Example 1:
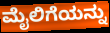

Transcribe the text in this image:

ಮೈಲಿಗೆಯನ್ನು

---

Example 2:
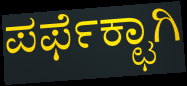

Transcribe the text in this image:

ಪರ್ಫೆಕ್ಟಾಗಿ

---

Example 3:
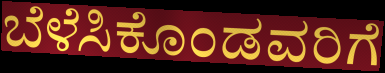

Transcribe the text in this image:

ಬೆಳೆಸಿಕೊಂಡವರಿಗೆ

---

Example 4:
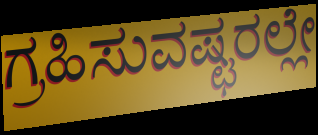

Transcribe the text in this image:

ಗ್ರಹಿಸುವಷ್ಟರಲ್ಲೇ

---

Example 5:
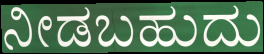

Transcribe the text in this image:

ನೀಡಬಹುದು